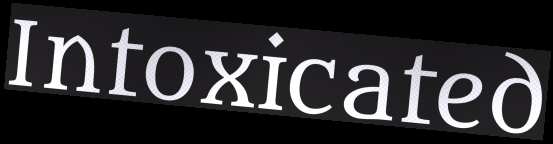
Intoxicated